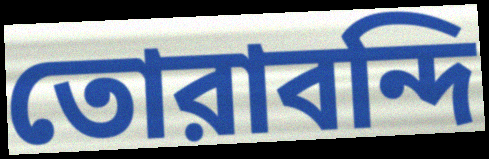
তোরাবন্দি